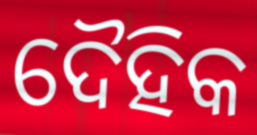
ଦୈହିକ